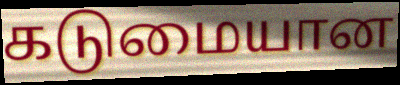
கடுமையான